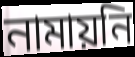
নামায়নি